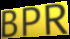
BPR